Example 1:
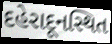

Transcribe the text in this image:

દહેરાદૂનસ્થિત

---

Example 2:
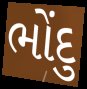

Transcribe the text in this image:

ભોંદુ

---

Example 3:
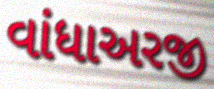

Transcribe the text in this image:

વાંધાઅરજી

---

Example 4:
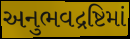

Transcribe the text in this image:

અનુભવદ્રષ્ટિમાં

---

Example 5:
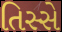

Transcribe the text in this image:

તિસ્સે